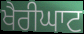
ਖੈਰੀਘਾਟ